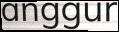
anggur